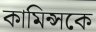
কামিন্সকে